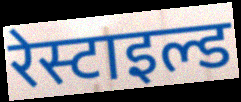
रेस्टाइल्ड